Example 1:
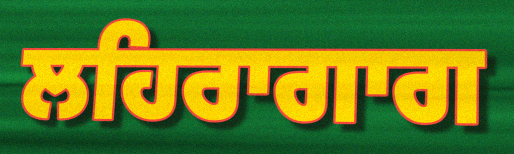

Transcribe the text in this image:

ਲਹਿਰਾਗਾਗ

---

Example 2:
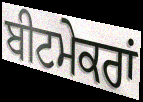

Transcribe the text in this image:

ਬੀਟਮੇਕਰਾਂ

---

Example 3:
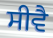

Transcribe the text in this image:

ਸੀਵੈ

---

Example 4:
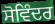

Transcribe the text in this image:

ਸੋਵਿੰਦਰ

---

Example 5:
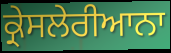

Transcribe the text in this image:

ਕ੍ਰੇਸਲੇਰੀਆਨਾ